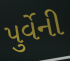
પુર્વેની